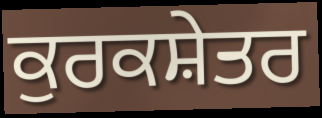
ਕੁਰਕਸ਼ੇਤਰ